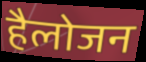
हैलोजन